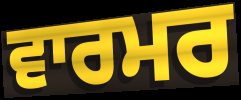
ਵਾਰਮਰ